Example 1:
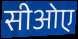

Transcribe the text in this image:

सीओए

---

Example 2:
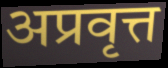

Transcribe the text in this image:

अप्रवृत्त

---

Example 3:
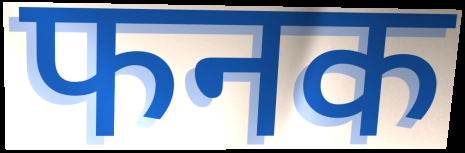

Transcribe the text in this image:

फनक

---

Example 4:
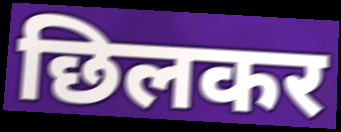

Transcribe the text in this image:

छिलकर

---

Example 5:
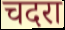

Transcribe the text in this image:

चदरा